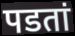
पडतां